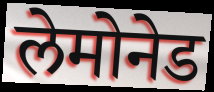
लेमोनेड